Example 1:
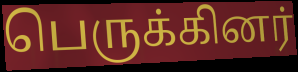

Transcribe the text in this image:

பெருக்கினர்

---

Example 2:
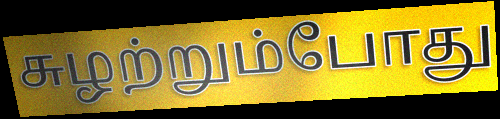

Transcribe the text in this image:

சுழற்றும்போது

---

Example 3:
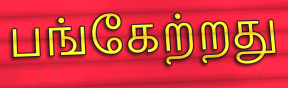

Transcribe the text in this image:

பங்கேற்றது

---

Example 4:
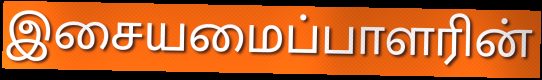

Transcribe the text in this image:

இசையமைப்பாளரின்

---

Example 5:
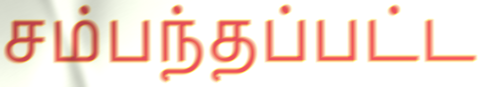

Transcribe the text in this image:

சம்பந்தப்பட்ட